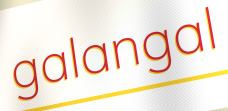
galangal